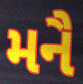
મનૈ